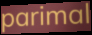
parimal